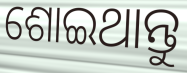
ଶୋଇଥାନ୍ତୁ